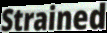
Strained